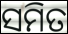
ସମିତ